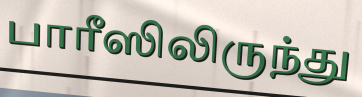
பாரீஸிலிருந்து